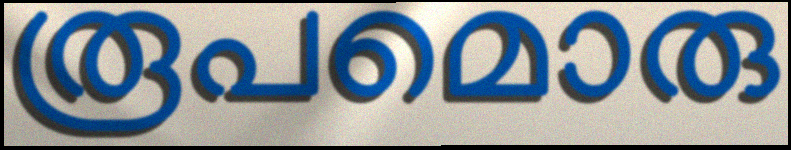
രൂപമൊരു